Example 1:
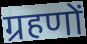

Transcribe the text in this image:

ग्रहणों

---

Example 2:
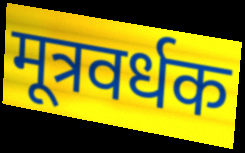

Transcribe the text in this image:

मूत्रवर्धक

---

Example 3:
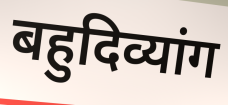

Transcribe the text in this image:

बहुदिव्यांग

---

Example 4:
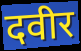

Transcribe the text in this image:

दवीर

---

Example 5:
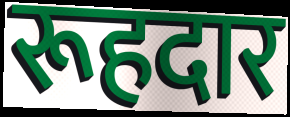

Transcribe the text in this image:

रूहदार